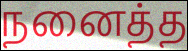
நனைத்த